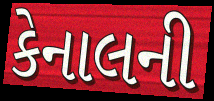
કેનાલની